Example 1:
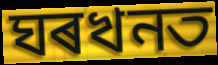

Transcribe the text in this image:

ঘৰখনত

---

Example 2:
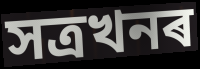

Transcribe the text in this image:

সত্ৰখনৰ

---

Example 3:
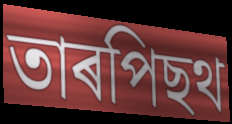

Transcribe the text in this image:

তাৰপিছথ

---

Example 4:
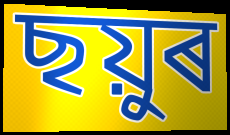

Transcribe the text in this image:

ছয়ুৰ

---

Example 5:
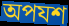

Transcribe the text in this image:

অপযশ